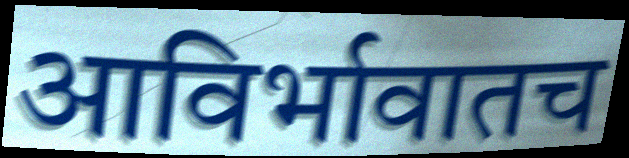
आविर्भावातच